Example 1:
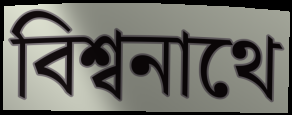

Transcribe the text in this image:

বিশ্বনাথে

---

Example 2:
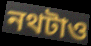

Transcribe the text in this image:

নথটাও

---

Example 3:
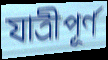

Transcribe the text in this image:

যাত্রীপূর্ণ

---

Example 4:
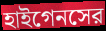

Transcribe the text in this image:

হাইগেনসের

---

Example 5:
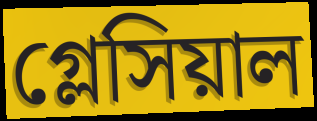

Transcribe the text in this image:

গ্লেসিয়াল